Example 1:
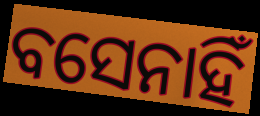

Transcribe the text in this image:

ବସେନାହିଁ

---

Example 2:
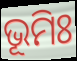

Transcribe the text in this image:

ଭୂମିଃ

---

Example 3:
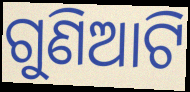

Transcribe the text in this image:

ଗୁଣିଆଟି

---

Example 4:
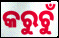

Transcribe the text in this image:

କରୁଚୁଁ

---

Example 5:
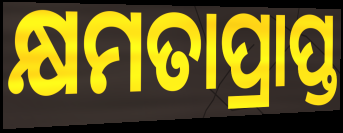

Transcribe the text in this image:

କ୍ଷମତାପ୍ରାପ୍ତ